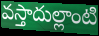
వస్తాదుల్లాంటి